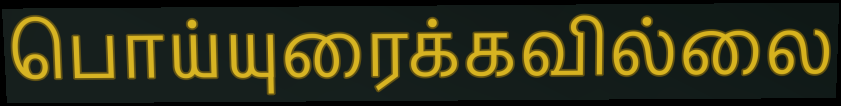
பொய்யுரைக்கவில்லை